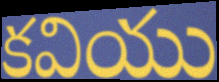
కవియు